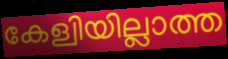
കേള്വിയില്ലാത്ത